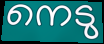
നെടു